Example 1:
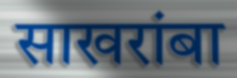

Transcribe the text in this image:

साखरांबा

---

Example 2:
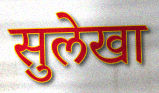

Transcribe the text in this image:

सुलेखा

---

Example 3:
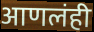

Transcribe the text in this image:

आणलंही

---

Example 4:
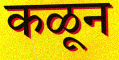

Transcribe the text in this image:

कळून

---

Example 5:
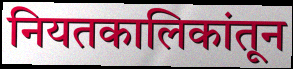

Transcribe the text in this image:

नियतकालिकांतून